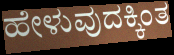
ಹೇಳುವುದಕ್ಕಿಂತ